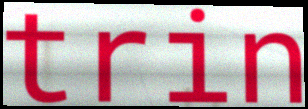
trin